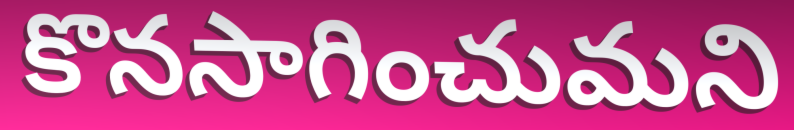
కొనసాగించుమని